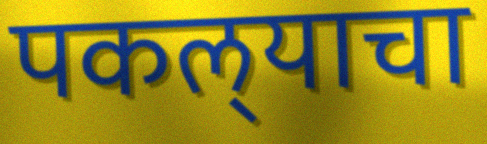
पकल्याचा